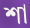
শা